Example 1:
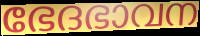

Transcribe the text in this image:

ഭേദഭാവന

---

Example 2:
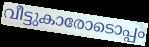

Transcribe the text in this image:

വീട്ടുകാരോടൊപ്പം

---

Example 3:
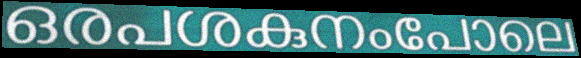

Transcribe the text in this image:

ഒരപശകുനംപോലെ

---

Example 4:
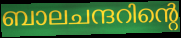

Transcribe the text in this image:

ബാലചന്ദറിന്റെ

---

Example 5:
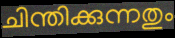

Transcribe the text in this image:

ചിന്തിക്കുന്നതും